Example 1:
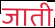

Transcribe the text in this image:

जाती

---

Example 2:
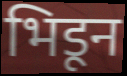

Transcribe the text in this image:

भिडून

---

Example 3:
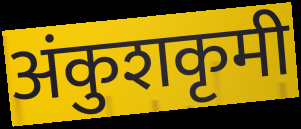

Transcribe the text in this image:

अंकुशकृमी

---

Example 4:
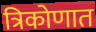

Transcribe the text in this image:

त्रिकोणात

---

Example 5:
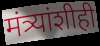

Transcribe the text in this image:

मंत्र्यांशीही